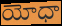
యోధా